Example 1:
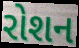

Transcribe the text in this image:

રોશન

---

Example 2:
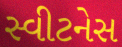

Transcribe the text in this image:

સ્વીટનેસ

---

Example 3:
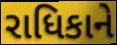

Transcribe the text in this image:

રાધિકાને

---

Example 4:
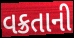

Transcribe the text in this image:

વક્રતાની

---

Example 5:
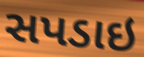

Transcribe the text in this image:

સપડાઇ